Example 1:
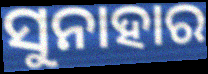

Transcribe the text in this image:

ସୁନାହାର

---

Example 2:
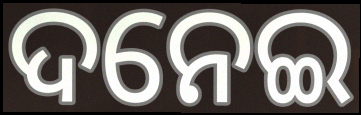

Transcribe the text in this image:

ଦନେଇ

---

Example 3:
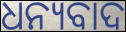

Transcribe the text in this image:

ଧନ୍ୟବାଦ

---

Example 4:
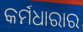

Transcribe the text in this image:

କର୍ମଧାରାର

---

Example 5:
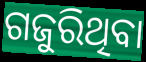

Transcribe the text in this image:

ଗଜୁରିଥିବା